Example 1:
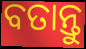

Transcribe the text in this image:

ବତାନ୍ତୁ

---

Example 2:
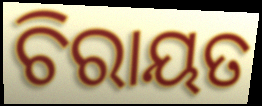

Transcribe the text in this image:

ଚିରାୟତ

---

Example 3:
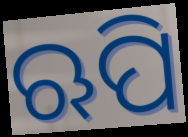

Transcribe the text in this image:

ଋପି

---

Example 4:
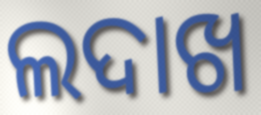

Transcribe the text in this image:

ଲଦାଖ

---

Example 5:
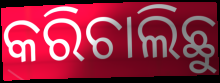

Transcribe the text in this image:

କରିଚାଲିଛୁ